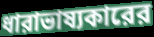
ধারাভাষ্যকারের